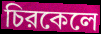
চিরকেলে